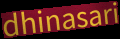
dhinasari